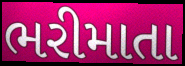
ભરીમાતા